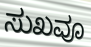
ಸುಖವೂ